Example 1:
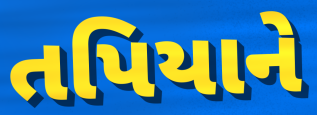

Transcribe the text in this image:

તપિયાને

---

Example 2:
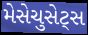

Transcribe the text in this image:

મેસેચુસેટ્સ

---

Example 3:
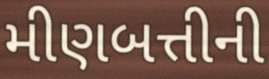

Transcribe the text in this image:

મીણબત્તીની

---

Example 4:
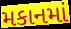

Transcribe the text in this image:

મકાનમાં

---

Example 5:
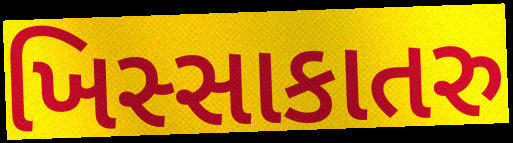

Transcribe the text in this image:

ખિસ્સાકાતરુ